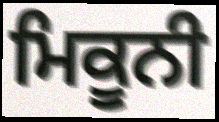
ਮਿਕੂਨੀ